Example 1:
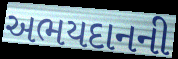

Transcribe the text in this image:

અભયદાનની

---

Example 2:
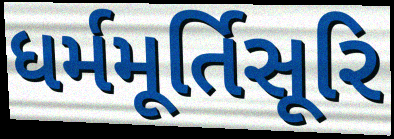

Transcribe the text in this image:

ધર્મમૂર્તિસૂરિ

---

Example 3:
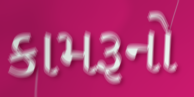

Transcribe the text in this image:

કામરૂનો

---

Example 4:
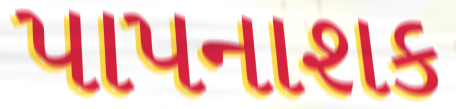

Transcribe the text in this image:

પાપનાશક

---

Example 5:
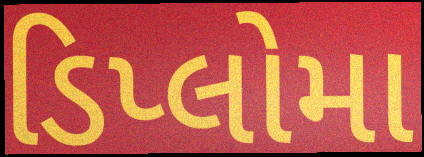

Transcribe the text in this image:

ડિપ્લોમા